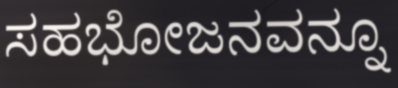
ಸಹಭೋಜನವನ್ನೂ